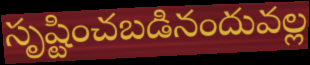
సృష్టించబడినందువల్ల